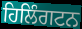
ਹਿਲਿੰਗਟਨ